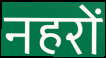
नहरों